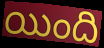
యింది